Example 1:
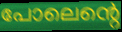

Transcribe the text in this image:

പോലെന്റെ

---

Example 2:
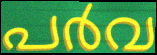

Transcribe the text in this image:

പർവ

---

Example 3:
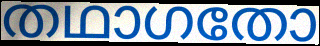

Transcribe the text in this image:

തഥാഗതോ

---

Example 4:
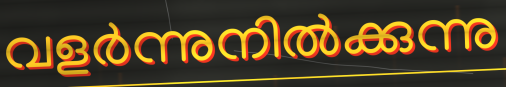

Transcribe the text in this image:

വളർന്നുനിൽക്കുന്നു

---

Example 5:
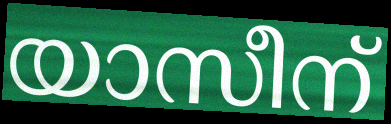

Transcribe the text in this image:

യാസീന്